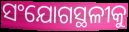
ସଂଯୋଗସ୍ଥଳୀକୁ